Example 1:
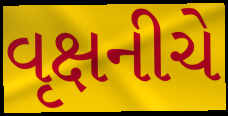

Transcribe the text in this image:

વૃક્ષનીચે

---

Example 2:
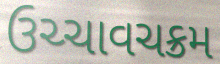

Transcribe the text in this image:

ઉચ્ચાવચક્રમ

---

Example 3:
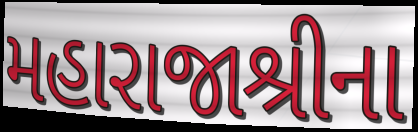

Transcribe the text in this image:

મહારાજાશ્રીના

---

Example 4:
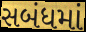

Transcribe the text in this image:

સબંધમાં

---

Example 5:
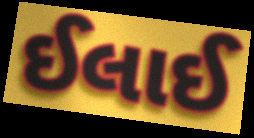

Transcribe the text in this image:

ઈલાઈ